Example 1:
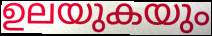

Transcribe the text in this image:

ഉലയുകയും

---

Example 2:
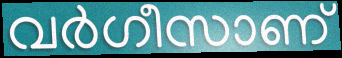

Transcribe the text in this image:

വർഗീസാണ്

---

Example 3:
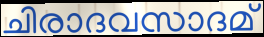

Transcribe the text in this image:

ചിരാദവസാദമ്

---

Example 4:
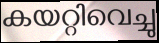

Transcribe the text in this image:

കയറ്റിവെച്ചു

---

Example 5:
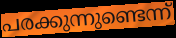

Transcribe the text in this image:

പരക്കുന്നുണ്ടെന്ന്